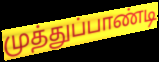
முத்துப்பாண்டி